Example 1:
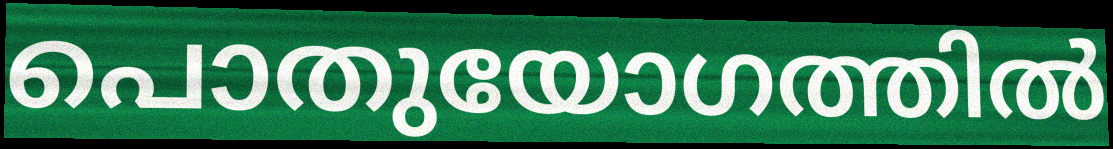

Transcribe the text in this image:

പൊതുയോഗത്തിൽ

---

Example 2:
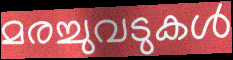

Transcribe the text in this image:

മരച്ചുവടുകൾ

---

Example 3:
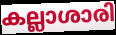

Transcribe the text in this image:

കല്ലാശാരി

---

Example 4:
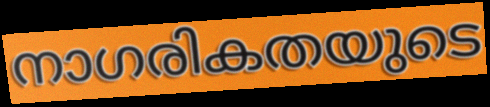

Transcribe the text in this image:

നാഗരികതയുടെ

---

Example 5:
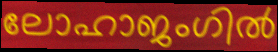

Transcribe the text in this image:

ലോഹാജംഗിൽ